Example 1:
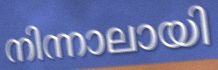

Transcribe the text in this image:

നിന്നാലായി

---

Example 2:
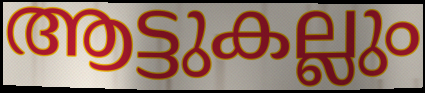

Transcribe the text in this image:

ആട്ടുകല്ലും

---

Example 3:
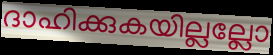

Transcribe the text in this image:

ദാഹിക്കുകയില്ലല്ലോ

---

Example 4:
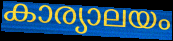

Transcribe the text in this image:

കാര്യാലയം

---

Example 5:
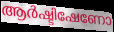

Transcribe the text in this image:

ആർഷ്ടിഷേണോ